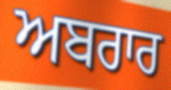
ਅਬਰਾਰ